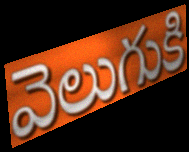
వెలుగుకి